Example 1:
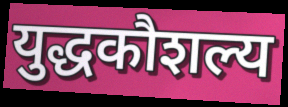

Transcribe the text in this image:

युद्धकौशल्य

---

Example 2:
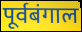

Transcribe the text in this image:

पूर्वबंगाल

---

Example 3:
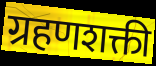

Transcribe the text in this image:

ग्रहणशक्ती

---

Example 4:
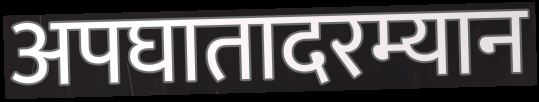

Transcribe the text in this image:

अपघातादरम्यान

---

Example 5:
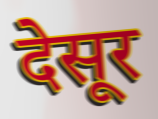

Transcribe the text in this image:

देसूर